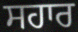
ਸਹਾਰ